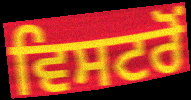
ਵਿਸਟਰੋਂ